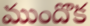
ముందొక